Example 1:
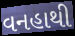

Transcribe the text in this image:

વનહાથી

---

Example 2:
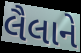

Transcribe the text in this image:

લૈલાને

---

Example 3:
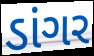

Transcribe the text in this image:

ડાંગર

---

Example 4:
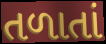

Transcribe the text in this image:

તળાતાં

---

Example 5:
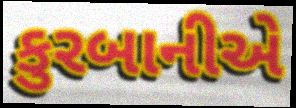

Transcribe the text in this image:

કુરબાનીએ